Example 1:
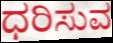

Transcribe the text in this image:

ಧರಿಸುವ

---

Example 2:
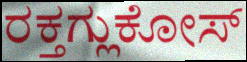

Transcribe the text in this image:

ರಕ್ತಗ್ಲುಕೋಸ್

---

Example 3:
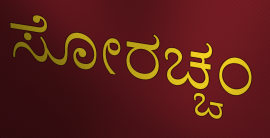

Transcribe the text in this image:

ಸೋರಚ್ಚಂ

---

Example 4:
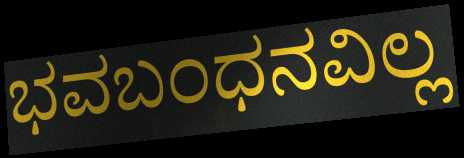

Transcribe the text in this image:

ಭವಬಂಧನವಿಲ್ಲ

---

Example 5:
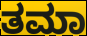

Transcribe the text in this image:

ತಮಾ